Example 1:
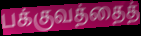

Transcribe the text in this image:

பக்குவத்தைத்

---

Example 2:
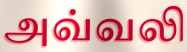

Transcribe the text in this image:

அவ்வலி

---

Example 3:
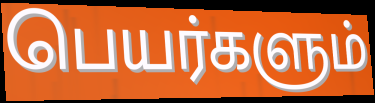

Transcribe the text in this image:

பெயர்களும்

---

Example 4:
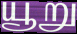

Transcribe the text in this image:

யூறு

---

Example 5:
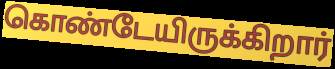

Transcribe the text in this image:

கொண்டேயிருக்கிறார்